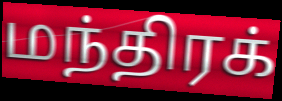
மந்திரக்